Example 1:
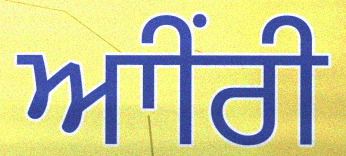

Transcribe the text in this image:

ਆੀਂਰੀ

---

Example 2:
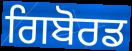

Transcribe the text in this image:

ਗਿਬੋਰਡ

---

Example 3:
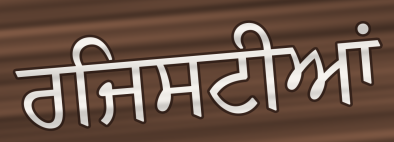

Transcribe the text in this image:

ਰਜਿਸਟੀਆਂ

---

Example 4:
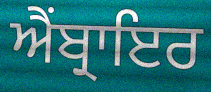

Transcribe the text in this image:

ਐਂਬ੍ਰਾਇਰ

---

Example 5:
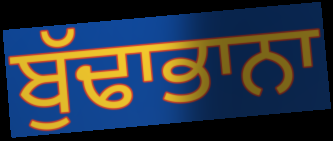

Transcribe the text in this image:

ਬੁੱਢਾਭਾਨਾ